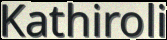
Kathiroli